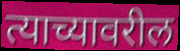
त्याच्यावरील